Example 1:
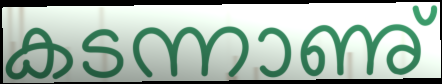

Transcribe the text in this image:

കടന്നാണു്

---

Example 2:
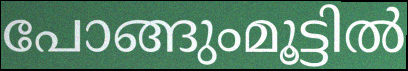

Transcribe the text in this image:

പോങ്ങുംമൂട്ടിൽ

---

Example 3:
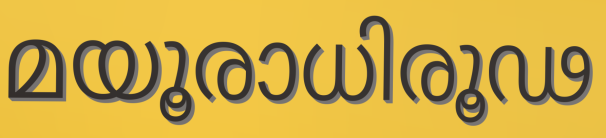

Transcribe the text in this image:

മയൂരാധിരൂഢ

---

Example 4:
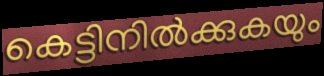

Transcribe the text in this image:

കെട്ടിനിൽക്കുകയും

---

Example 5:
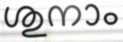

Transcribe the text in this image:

ശുനാം